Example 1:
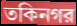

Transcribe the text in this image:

তকিনগর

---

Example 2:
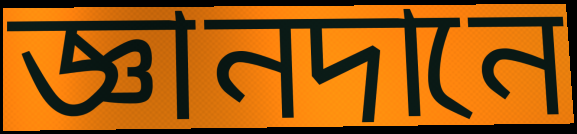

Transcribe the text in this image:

জ্ঞানদানে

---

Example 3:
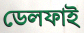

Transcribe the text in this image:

ডেলফাই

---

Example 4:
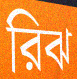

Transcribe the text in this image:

রিঝ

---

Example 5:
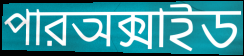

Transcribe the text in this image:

পারঅক্সাইড